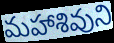
మహాశివుని